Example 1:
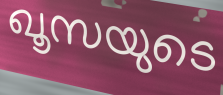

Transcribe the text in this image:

ഖൂസയുടെ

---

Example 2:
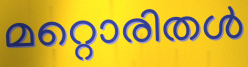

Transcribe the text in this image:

മറ്റൊരിതൾ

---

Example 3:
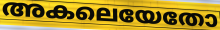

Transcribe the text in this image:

അകലെയേതോ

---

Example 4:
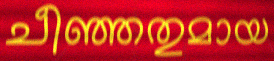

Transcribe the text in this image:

ചീഞ്ഞതുമായ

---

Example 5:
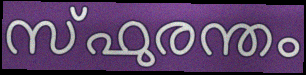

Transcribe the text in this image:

സ്ഫുരന്തം